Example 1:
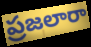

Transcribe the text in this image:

ప్రజలారా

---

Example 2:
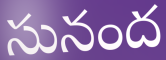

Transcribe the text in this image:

సునంద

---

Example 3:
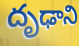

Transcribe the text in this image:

దృఢాని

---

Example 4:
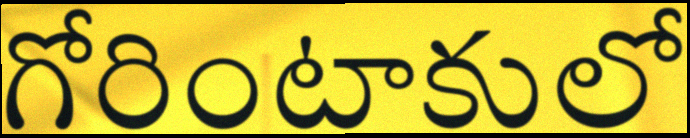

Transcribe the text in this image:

గోరింటాకులో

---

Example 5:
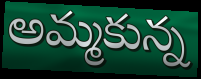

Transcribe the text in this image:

అమ్మకున్న